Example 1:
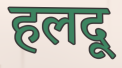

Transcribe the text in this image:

हलदू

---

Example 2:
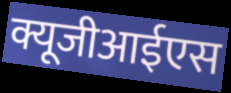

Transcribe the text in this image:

क्यूजीआईएस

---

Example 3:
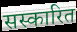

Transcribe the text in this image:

सस्कारित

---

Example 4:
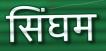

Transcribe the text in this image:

सिंघम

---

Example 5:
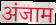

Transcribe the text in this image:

अंजाम